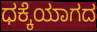
ಧಕ್ಕೆಯಾಗದ